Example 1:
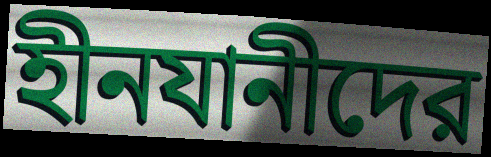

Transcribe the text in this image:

হীনযানীদের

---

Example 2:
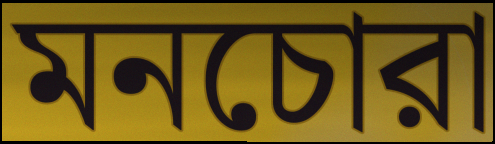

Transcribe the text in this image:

মনচোরা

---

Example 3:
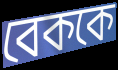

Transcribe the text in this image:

বেককে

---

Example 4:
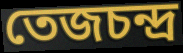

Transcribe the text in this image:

তেজচন্দ্র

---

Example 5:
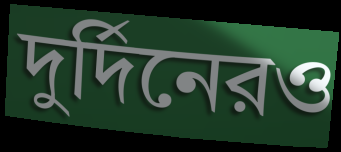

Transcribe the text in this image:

দুর্দিনেরও